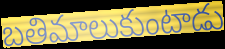
బతిమాలుకుంటాడు